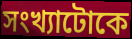
সংখ্যাটোকে